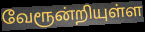
வேரூன்றியுள்ள